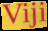
Viji